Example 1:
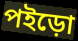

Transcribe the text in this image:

পইড়ো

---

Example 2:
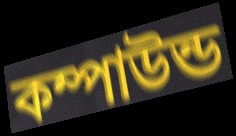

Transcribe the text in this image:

কম্পাউন্ড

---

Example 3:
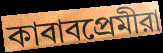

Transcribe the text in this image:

কাবাবপ্রেমীরা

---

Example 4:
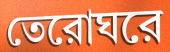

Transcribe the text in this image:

তেরোঘরে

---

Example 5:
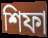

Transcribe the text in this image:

শিফা